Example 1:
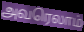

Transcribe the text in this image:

அவரெலாம்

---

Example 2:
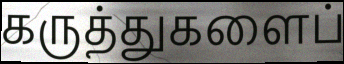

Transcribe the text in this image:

கருத்துகளைப்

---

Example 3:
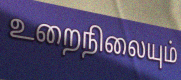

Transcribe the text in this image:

உறைநிலையும்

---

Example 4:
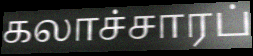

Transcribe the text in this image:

கலாச்சாரப்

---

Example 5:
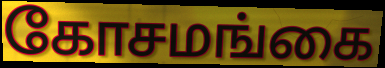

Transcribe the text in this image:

கோசமங்கை